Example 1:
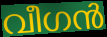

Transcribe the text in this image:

വീഗൻ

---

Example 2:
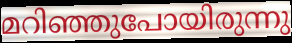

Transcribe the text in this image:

മറിഞ്ഞുപോയിരുന്നു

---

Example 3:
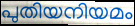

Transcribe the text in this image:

പുതിയനിയമം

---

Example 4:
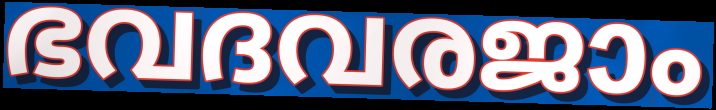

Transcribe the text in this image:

ഭവദവരജാം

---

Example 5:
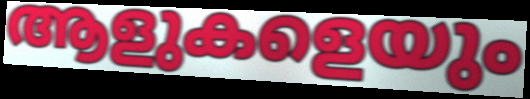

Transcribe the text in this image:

ആളുകളെയും